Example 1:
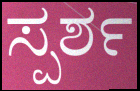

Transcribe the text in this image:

ಸ್ಪರ್ಶ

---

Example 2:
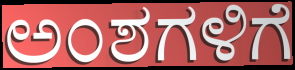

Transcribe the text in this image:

ಅಂಶಗಳಿಗೆ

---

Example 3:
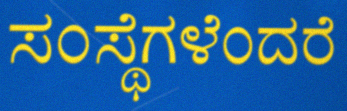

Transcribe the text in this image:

ಸಂಸ್ಥೆಗಳೆಂದರೆ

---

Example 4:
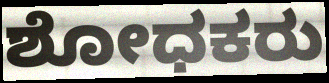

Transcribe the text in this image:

ಶೋಧಕರು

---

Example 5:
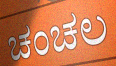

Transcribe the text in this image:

ಚಂಚಲ